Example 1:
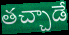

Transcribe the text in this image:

తచ్చాడే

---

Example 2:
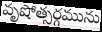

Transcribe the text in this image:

వృషోత్సర్గమును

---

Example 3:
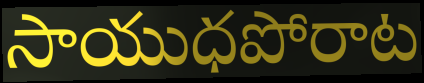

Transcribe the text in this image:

సాయుధపోరాట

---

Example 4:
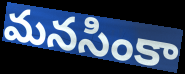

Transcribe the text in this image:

మనసింకా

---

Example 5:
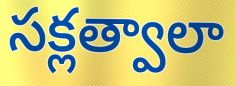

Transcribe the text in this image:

సక్లత్వాలా